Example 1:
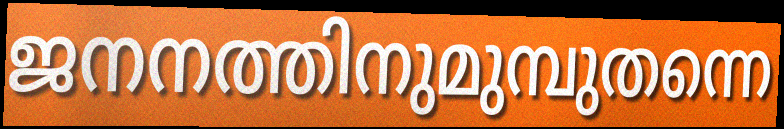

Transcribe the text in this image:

ജനനത്തിനുമുമ്പുതന്നെ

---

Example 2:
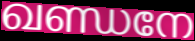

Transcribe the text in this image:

ഖണ്ഡനേ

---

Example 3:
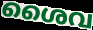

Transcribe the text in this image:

ശൈവ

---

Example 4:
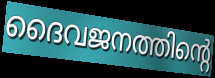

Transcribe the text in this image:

ദൈവജനത്തിന്റെ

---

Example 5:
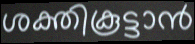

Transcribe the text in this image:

ശക്തികൂട്ടാൻ